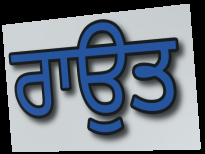
ਰਾਉਤ